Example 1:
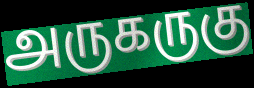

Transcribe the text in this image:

அருகருகு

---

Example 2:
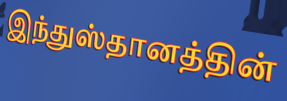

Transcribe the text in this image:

இந்துஸ்தானத்தின்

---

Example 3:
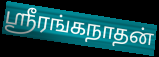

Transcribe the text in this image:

ஸ்ரீரங்கநாதன்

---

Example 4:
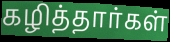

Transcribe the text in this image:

கழித்தார்கள்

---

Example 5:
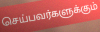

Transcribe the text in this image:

செய்பவர்களுக்கும்